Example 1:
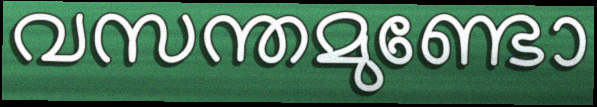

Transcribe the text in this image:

വസന്തമുണ്ടോ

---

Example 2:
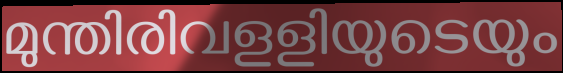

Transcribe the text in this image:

മുന്തിരിവളളിയുടെയും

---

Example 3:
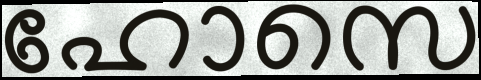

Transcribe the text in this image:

ഹോസെ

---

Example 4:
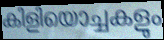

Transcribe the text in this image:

കിളിയൊച്ചകളും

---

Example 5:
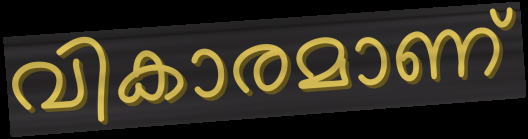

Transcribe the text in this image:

വികാരമാണ്